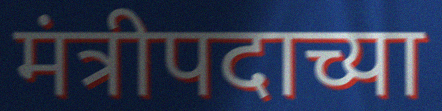
मंत्रीपदाच्या